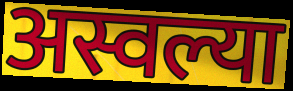
अस्वल्या